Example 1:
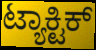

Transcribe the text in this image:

ಟ್ಯಾಕ್ಟಿಕ್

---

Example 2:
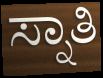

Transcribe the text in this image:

ಸ್ನಾತಿ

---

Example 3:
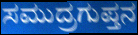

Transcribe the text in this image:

ಸಮುದ್ರಗುಪ್ತನ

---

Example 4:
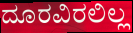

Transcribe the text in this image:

ದೂರವಿರಲಿಲ್ಲ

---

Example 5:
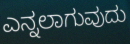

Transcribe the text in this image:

ಎನ್ನಲಾಗುವುದು